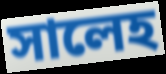
সালেহ